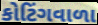
કોટિંગવાળા